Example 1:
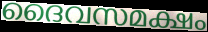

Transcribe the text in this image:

ദൈവസമക്ഷം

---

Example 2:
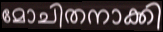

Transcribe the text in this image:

മോചിതനാക്കി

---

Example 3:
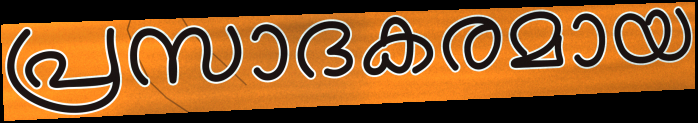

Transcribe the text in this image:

പ്രസാദകരമായ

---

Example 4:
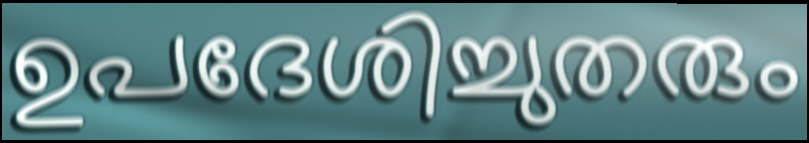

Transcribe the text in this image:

ഉപദേശിച്ചുതരും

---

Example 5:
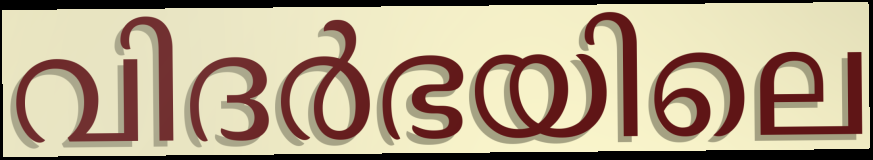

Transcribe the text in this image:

വിദർഭയിലെ